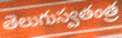
తెలుగుస్వతంత్ర